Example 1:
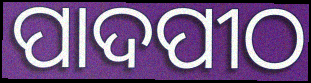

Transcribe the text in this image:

ପାଦପୀଠ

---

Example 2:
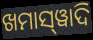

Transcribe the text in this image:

ଖମାସ୍‌ୱାଦି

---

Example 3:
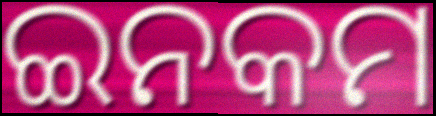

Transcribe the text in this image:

ଇନକମ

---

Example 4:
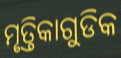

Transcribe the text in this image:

ମୃତ୍ତିକାଗୁଡିକ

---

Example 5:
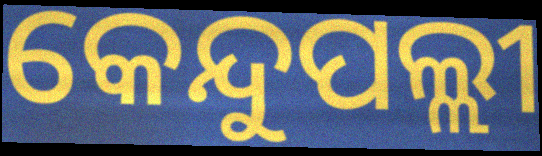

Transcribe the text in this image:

କେନ୍ଦୁପଲ୍ଲୀ